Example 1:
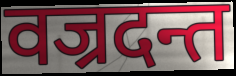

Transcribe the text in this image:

वज्रदन्त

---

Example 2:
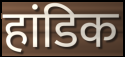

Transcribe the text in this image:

हांडिक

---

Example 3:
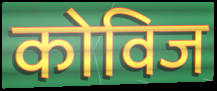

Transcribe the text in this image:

कोविज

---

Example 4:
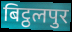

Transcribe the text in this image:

बिट्ठलपुर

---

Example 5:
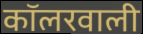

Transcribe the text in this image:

कॉलरवाली